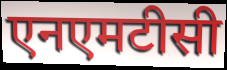
एनएमटीसी